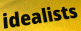
idealists